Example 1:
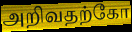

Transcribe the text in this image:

அறிவதற்கோ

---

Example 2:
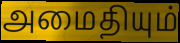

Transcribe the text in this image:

அமைதியும்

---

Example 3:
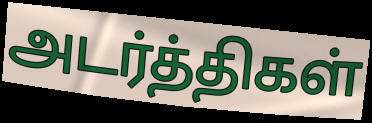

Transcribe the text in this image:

அடர்த்திகள்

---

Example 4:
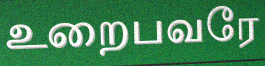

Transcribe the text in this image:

உறைபவரே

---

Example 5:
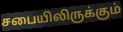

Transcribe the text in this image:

சபையிலிருக்கும்